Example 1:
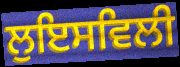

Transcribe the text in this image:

ਲੁਇਸਵਿਲੀ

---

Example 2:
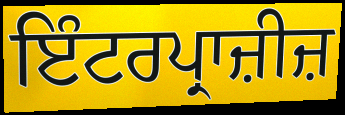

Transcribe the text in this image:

ਇੰਟਰਪ੍ਰਾਜ਼ੀਜ਼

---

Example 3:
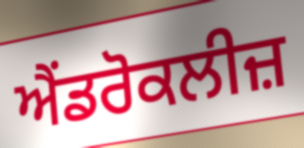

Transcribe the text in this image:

ਐਂਡਰੋਕਲੀਜ਼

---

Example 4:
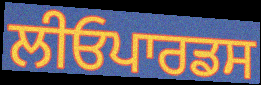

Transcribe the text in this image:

ਲੀਓਪਾਰਡਸ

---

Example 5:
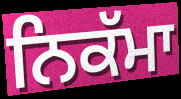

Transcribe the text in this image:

ਨਿਕੱਮਾ